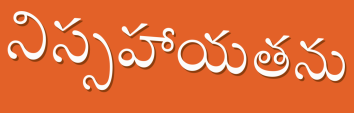
నిస్సహాయతను